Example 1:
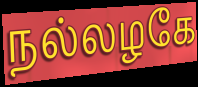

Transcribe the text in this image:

நல்லழகே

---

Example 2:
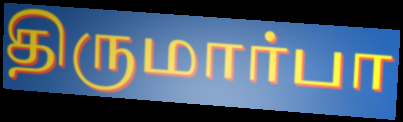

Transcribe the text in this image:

திருமார்பா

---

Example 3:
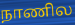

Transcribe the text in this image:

நாணில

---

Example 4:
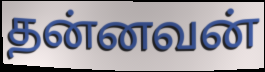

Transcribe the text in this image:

தன்னவன்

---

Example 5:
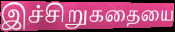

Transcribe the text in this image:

இச்சிறுகதையை